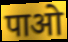
पाओ